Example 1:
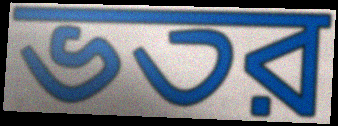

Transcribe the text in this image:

ভতর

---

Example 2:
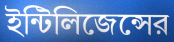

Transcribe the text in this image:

ইন্টিলিজেন্সের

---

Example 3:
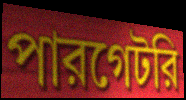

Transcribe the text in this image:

পারগেটরি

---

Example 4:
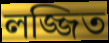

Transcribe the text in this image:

লজ্জিত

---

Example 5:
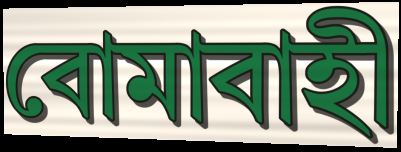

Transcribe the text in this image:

বোমাবাহী